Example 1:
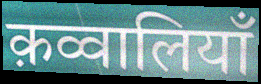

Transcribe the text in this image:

क़व्वालियाँ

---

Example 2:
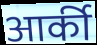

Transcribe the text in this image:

आर्की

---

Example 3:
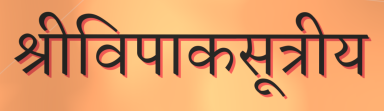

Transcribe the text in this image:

श्रीविपाकसूत्रीय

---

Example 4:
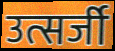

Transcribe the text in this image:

उत्सर्जी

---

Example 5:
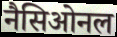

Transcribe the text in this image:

नैसिओनल